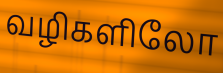
வழிகளிலோ